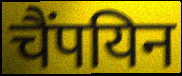
चैंपयिन